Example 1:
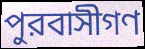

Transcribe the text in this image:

পুরবাসীগণ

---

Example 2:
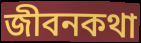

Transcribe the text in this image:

জীবনকথা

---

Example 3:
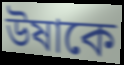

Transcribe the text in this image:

উষাকে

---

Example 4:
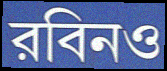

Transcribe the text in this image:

রবিনও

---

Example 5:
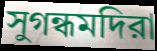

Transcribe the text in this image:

সুগন্ধমদিরা